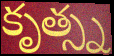
కృత్స్న